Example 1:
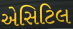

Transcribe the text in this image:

એસિટિલ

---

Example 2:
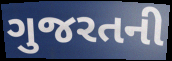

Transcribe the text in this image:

ગુજરતની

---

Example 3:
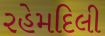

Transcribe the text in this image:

રહેમદિલી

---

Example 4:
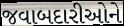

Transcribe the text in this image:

જવાબદારીઓને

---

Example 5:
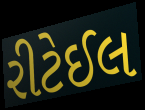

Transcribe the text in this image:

રીટેઈલ